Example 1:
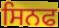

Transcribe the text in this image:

ਸਿਨਫ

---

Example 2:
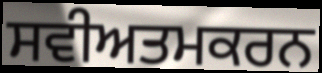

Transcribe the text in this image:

ਸਵੀਅਤਮਕਰਨ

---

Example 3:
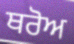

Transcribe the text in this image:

ਥਰੋਅ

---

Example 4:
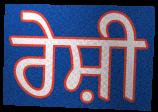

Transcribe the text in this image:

ਰੇਸ਼ੀ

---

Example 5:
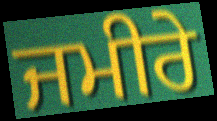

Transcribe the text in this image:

ਜਮੀਰੇ